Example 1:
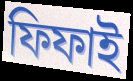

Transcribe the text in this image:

ফিফাই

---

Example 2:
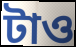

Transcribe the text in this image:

টাও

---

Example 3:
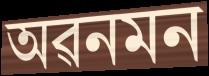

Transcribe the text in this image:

অৱনমন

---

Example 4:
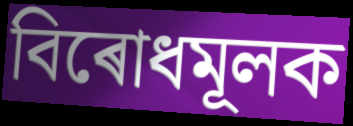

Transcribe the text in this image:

বিৰোধমূলক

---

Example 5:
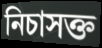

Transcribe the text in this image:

নিচাসক্ত